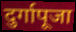
दुर्गापूजा